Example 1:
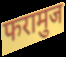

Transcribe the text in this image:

फरामुज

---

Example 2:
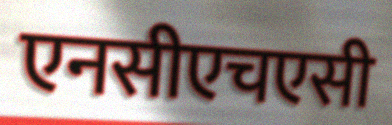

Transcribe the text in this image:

एनसीएचएसी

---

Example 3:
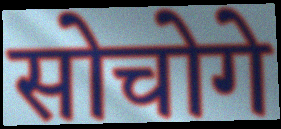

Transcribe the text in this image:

सोचोगे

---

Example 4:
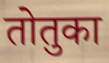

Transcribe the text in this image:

तोतुका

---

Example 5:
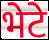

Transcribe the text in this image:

भेटे